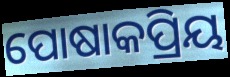
ପୋଷାକପ୍ରିୟ